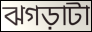
ঝগড়াটা